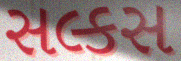
સલ્કસ